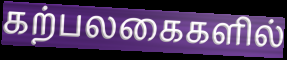
கற்பலகைகளில்